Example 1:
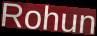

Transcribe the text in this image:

Rohun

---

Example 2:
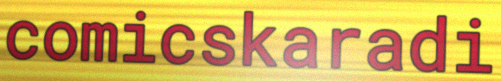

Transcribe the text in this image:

comicskaradi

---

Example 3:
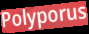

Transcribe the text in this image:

Polyporus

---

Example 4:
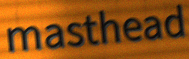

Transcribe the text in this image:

masthead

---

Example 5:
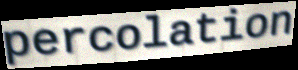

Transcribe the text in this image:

percolation